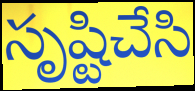
సృష్టిచేసి